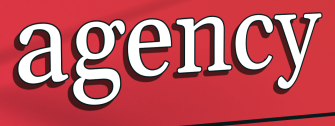
agency